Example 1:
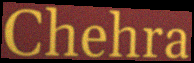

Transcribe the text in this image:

Chehra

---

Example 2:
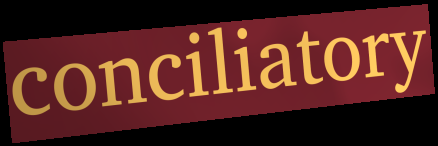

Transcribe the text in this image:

conciliatory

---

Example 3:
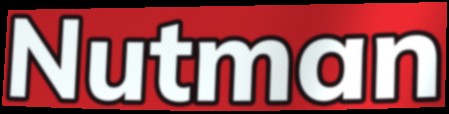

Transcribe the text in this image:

Nutman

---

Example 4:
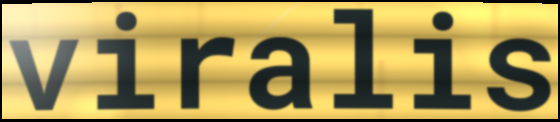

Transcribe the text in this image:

viralis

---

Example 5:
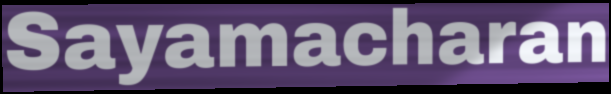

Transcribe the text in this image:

Sayamacharan